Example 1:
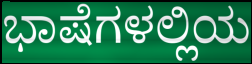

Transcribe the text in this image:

ಭಾಷೆಗಳಲ್ಲಿಯ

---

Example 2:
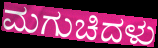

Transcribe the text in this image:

ಮಗುಚಿದಳು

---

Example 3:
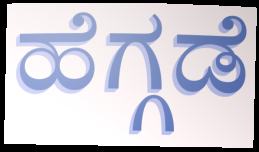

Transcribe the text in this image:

ಹೆಗ್ಗಡೆ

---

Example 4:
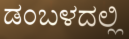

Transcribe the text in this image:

ಡಂಬಳದಲ್ಲಿ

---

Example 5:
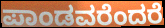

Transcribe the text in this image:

ಪಾಂಡವರೆಂದರೆ